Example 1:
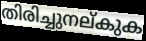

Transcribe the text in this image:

തിരിച്ചുനല്കുക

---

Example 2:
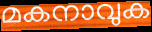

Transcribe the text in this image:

മകനാവുക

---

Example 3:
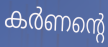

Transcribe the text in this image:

കർണന്റെ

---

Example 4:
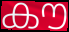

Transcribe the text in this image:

കൗ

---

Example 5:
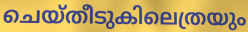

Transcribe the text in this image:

ചെയ്തീടുകിലെത്രയും